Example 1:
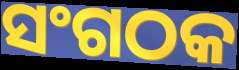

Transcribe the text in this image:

ସଂଗଠକ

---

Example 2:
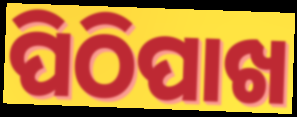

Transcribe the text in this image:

ପିଠିପାଖ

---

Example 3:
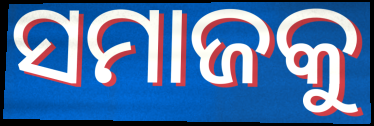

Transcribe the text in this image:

ସମାଜକୁ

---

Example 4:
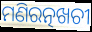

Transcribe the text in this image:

ମଣିରତ୍ନଖଚୀ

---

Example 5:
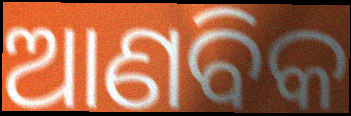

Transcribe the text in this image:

ଆଣବିକ